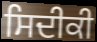
ਸਿਦੀਕੀ